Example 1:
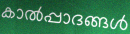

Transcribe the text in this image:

കാൽപ്പാദങ്ങൾ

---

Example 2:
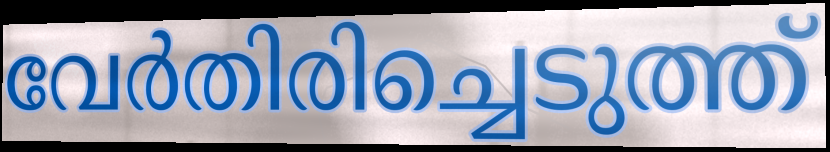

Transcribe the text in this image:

വേർതിരിച്ചെടുത്ത്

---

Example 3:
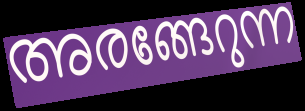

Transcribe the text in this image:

അരങ്ങേറുന്ന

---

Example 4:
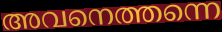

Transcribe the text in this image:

അവനെത്തന്നെ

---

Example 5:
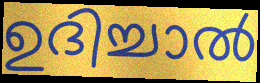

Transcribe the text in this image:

ഉദിച്ചാൽ